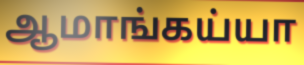
ஆமாங்கய்யா